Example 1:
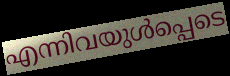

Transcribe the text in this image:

എന്നിവയുൾപ്പെടെ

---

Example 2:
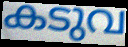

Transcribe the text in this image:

കടുവ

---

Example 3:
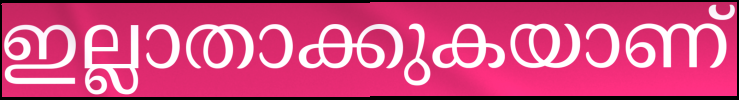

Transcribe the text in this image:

ഇല്ലാതാക്കുകയാണ്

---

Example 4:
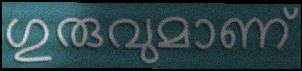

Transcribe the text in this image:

ഗുരുവുമാണ്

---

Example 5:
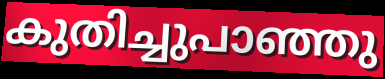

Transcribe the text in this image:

കുതിച്ചുപാഞ്ഞു